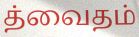
த்வைதம்